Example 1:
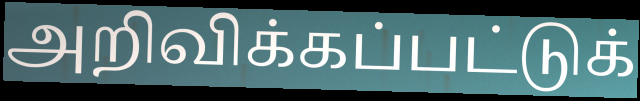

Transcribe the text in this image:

அறிவிக்கப்பட்டுக்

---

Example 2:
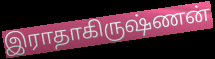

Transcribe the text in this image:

இராதாகிருஷ்ணன்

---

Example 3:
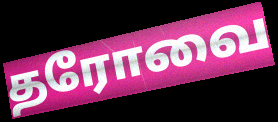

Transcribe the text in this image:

தரோவை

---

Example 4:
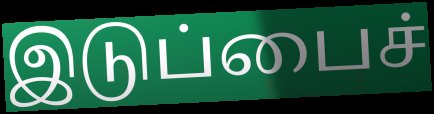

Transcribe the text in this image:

இடுப்பைச்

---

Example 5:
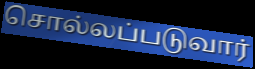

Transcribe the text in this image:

சொல்லப்படுவார்